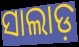
ସାଲାଡ଼